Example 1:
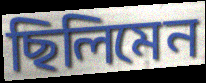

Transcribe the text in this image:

ছিলিমেন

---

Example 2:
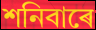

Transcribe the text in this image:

শনিবাৰে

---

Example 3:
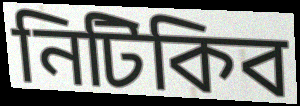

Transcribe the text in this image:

নিটিকিব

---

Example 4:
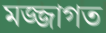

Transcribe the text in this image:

মজ্জাগত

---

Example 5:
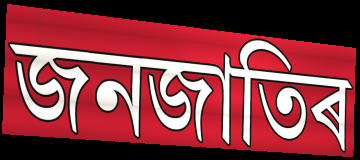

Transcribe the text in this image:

জনজাতিৰ